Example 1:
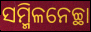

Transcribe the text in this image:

ସମ୍ମିଳନେଚ୍ଛା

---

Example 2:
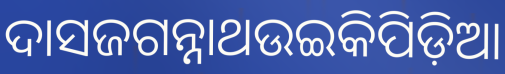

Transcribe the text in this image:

ଦାସଜଗନ୍ନାଥଉଇକିପିଡ଼ିଆ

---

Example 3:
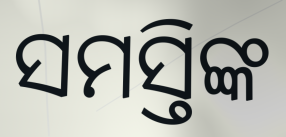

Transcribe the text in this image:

ସମସ୍ତିଙ୍କ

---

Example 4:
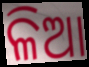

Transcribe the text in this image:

ଳିଆ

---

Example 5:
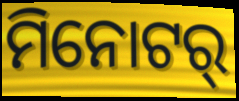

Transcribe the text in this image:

ମିନୋଟର୍